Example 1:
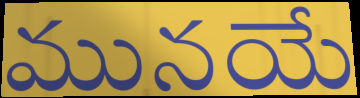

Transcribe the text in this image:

మునయే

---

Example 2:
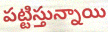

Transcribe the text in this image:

పట్టిస్తున్నాయి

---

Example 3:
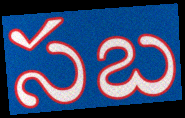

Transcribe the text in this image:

సబ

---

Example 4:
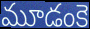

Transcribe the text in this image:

మూడంకె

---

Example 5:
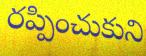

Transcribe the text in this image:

రప్పించుకుని